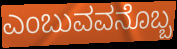
ಎಂಬುವವನೊಬ್ಬ